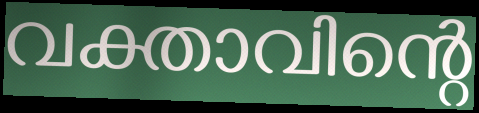
വക്താവിന്റെ